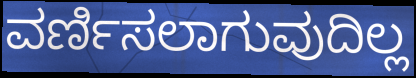
ವರ್ಣಿಸಲಾಗುವುದಿಲ್ಲ